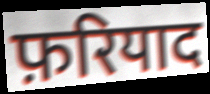
फ़रियाद